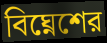
বিঘ্নেশের